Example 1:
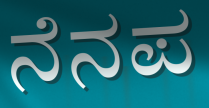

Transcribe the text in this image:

ನೆನಪ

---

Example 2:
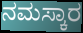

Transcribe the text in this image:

ನಮಸ್ಕಾರ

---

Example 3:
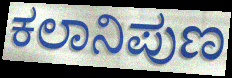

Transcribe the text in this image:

ಕಲಾನಿಪುಣ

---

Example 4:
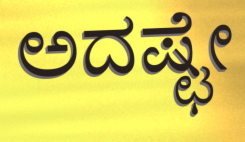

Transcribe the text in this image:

ಅದಷ್ಟೇ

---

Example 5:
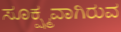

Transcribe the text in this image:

ಸೂಕ್ಷ್ಮವಾಗಿರುವ